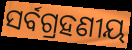
ସର୍ବଗ୍ରହଣୀୟ